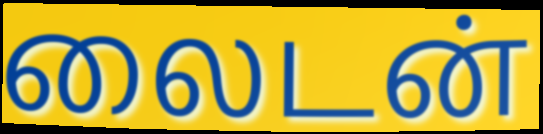
லைடன்